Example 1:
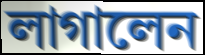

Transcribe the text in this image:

লাগালেন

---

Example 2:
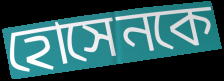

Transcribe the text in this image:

হোসেনকে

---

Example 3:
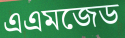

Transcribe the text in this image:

এএমজেড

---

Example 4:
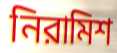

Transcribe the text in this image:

নিরামিশ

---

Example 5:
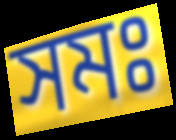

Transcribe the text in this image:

সমঃ